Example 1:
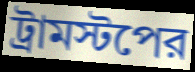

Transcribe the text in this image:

ট্রামস্টপের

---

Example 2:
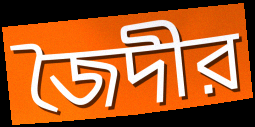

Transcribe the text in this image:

জৈদীর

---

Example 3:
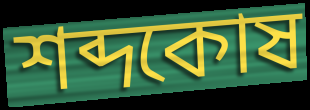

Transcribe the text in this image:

শব্দকোষ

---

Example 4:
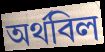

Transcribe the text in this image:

অর্থবিল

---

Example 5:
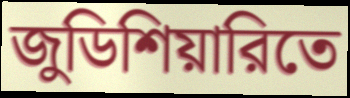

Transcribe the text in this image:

জুডিশিয়ারিতে